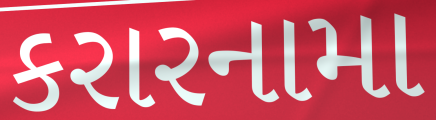
કરારનામા